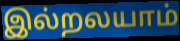
இல்றலயாம்